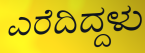
ಎರೆದಿದ್ದಳು